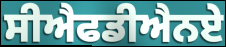
ਸੀਐਫਡੀਐਨਏ